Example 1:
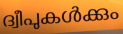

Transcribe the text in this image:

ദ്വീപുകൾക്കും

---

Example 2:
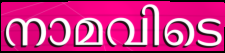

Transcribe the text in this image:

നാമവിടെ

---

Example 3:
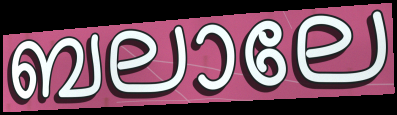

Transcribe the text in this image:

ബലാലേ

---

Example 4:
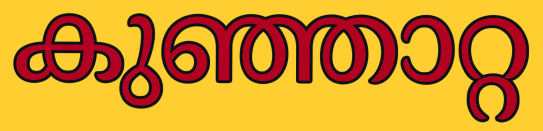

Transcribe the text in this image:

കുഞ്ഞാറ്റ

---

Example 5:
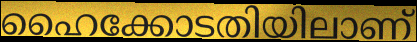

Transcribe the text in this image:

ഹൈക്കോടതിയിലാണ്